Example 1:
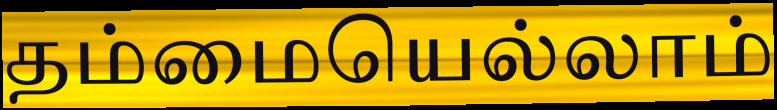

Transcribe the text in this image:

தம்மையெல்லாம்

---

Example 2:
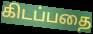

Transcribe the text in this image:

கிடப்பதை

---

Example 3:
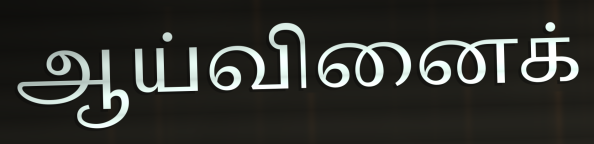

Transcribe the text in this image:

ஆய்வினைக்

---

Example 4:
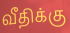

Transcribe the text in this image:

வீதிக்கு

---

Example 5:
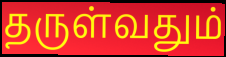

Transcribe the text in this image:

தருள்வதும்